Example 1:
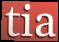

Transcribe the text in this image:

tia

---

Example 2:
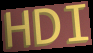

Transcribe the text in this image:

HDI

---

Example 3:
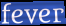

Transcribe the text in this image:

fever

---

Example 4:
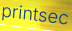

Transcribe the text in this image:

printsec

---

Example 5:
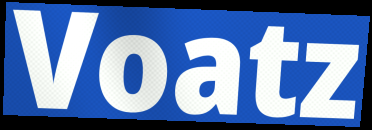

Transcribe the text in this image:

Voatz